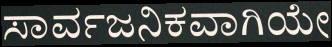
ಸಾರ್ವಜನಿಕವಾಗಿಯೇ